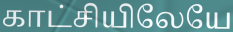
காட்சியிலேயே